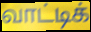
வாட்டிக்